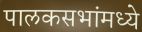
पालकसभांमध्ये